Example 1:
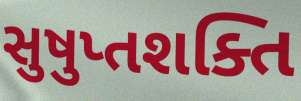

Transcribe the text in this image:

સુષુપ્તશક્તિ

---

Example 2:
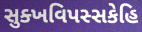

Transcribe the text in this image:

સુક્ખવિપસ્સકેહિ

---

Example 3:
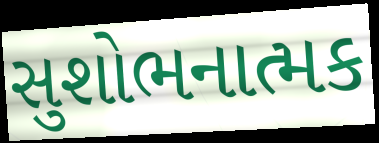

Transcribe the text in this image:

સુશોભનાત્મક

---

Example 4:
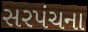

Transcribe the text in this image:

સરપંચના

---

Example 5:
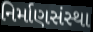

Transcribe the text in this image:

નિર્માણસંસ્થા